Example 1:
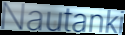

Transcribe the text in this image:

Nautanki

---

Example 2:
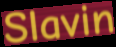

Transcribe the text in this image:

Slavin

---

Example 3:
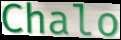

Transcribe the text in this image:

Chalo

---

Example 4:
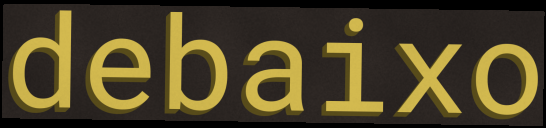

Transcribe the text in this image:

debaixo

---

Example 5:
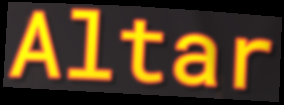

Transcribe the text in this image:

Altar